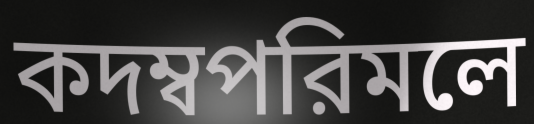
কদম্বপরিমলে